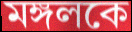
মঙ্গলকে